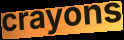
crayons